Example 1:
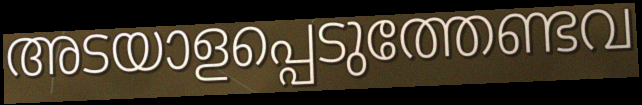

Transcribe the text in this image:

അടയാളപ്പെടുത്തേണ്ടവ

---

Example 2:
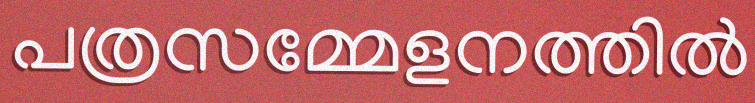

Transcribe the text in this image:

പത്രസമ്മേളനത്തിൽ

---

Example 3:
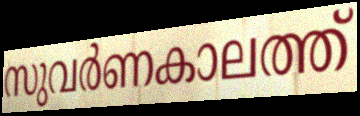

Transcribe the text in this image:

സുവർണകാലത്ത്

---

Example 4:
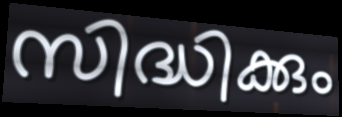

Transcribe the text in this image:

സിദ്ധിക്കും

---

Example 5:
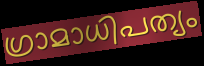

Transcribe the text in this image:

ഗ്രാമാധിപത്യം